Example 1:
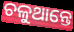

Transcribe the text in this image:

ଚଳୁଥାନ୍ତେ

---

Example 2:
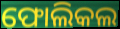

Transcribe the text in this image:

ଫୋଲିକଲ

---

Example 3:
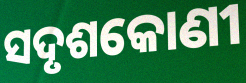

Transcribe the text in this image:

ସଦୃଶକୋଣୀ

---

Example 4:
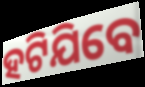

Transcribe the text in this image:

ହଟିଯିବେ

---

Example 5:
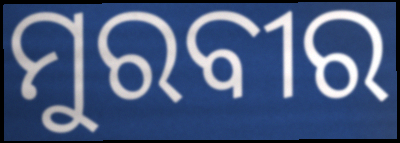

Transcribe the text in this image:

ମୁରବୀର